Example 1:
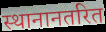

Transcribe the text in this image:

स्थानानतरित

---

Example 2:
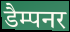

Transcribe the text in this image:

डैम्पनर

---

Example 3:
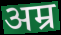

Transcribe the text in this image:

अम्र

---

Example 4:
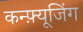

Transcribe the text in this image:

कन्फ़्यूजिंग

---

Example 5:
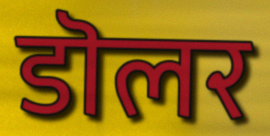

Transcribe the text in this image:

डॊलर